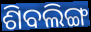
ଶିବଲିଙ୍ଗ